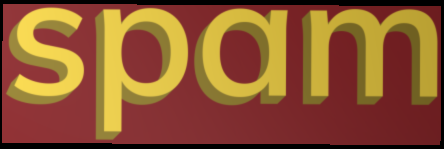
spam